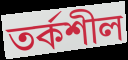
তর্কশীল